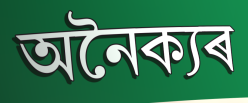
অনৈক্যৰ